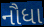
નૌધા